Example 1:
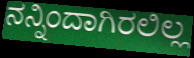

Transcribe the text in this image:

ನನ್ನಿಂದಾಗಿರಲಿಲ್ಲ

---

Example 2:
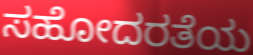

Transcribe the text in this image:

ಸಹೋದರತೆಯ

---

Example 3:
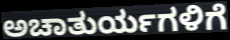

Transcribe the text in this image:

ಅಚಾತುರ್ಯಗಳಿಗೆ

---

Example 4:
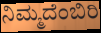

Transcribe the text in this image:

ನಿಮ್ಮದೆಂಬಿರಿ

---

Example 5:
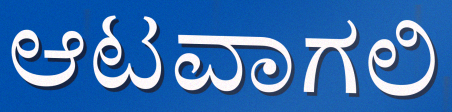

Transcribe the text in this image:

ಆಟವಾಗಲಿ